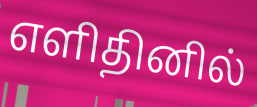
எளிதினில்